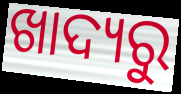
ଖାଦ୍ୟରୁ